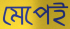
মেপেই